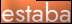
estaba